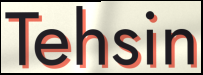
Tehsin